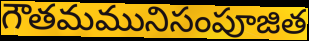
గౌతమమునిసంపూజిత